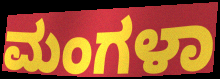
ಮಂಗಳಾ